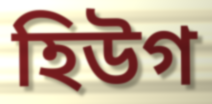
হিউগ